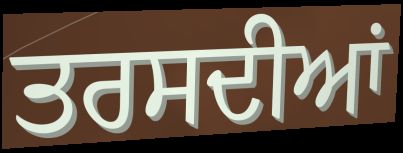
ਤਰਸਦੀਆਂ